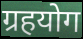
ग्रहयोग